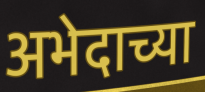
अभेदाच्या